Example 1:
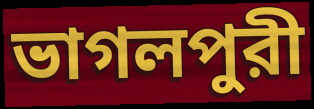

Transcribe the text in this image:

ভাগলপুরী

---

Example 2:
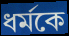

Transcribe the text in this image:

ধর্মকে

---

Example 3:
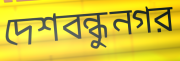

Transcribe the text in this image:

দেশবন্ধুনগর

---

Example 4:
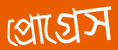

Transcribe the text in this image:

প্রোগ্রেস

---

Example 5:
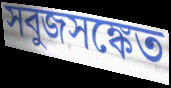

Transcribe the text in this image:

সবুজসঙ্কেত